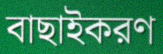
বাছাইকরণ